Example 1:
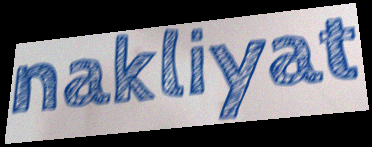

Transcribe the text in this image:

nakliyat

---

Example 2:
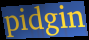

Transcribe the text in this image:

pidgin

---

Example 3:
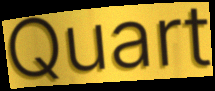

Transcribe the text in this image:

Quart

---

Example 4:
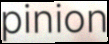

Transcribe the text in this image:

pinion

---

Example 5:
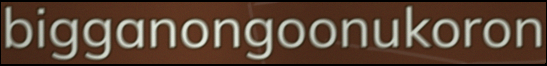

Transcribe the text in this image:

bigganongoonukoron